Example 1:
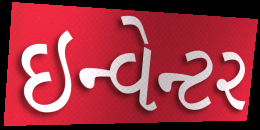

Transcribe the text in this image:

ઇન્વેન્ટર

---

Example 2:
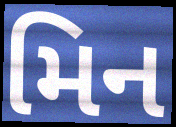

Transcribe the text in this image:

મિન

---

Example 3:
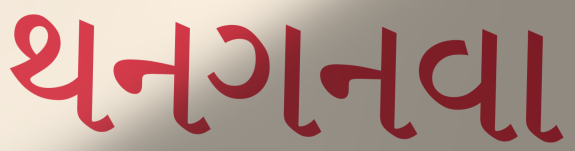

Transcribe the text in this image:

થનગનવા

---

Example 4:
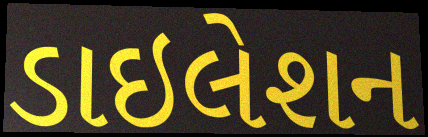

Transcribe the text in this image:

ડાઇલેશન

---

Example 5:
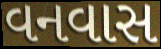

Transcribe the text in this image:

વનવાસ